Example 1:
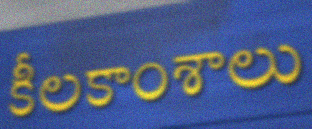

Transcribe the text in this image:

కీలకాంశాలు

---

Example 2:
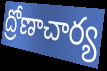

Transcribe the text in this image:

ద్రోణాచార్య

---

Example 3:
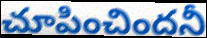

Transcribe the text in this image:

చూపించిందనీ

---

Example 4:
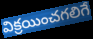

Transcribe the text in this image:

విక్రయించగలిగే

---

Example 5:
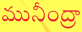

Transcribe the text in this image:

మునీంద్రా